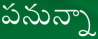
పనున్నా